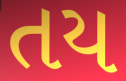
તય